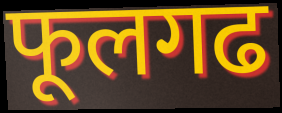
फूलगढ